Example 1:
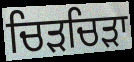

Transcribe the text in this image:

ਚਿੜਚਿੜਾ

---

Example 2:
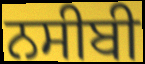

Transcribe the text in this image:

ਨਸੀਬੀ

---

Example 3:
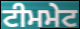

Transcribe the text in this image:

ਟੀਮਮੇਟ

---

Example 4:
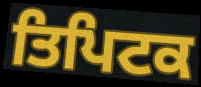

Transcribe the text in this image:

ਤਿਪਿਟਕ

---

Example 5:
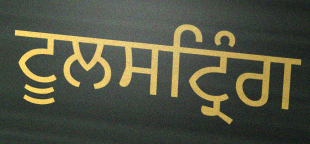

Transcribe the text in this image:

ਟੂਲਸਟ੍ਰਿੰਗ